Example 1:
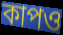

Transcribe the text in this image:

কাপও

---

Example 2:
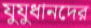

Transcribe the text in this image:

যুযুধানদের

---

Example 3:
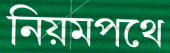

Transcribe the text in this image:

নিয়মপথে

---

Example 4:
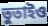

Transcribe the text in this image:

তুতাইও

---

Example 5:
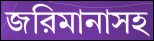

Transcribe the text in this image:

জরিমানাসহ